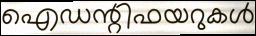
ഐഡന്റിഫയറുകൾ